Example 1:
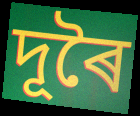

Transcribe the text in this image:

দূৰৈ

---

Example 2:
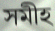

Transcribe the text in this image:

সমীহ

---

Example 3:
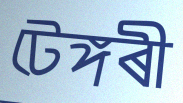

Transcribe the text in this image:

টেঙ্গৰী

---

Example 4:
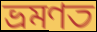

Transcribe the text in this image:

ভ্ৰমণত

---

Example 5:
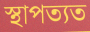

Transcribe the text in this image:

স্থাপত্যত